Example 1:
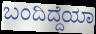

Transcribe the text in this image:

ಬಂದಿದ್ದೆಯಾ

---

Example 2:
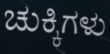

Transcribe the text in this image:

ಚುಕ್ಕಿಗಳು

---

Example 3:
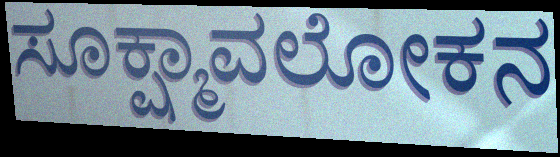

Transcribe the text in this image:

ಸೂಕ್ಷ್ಮಾವಲೋಕನ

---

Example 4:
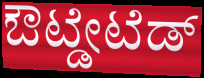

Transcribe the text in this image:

ಔಟ್ಡೇಟೆಡ್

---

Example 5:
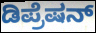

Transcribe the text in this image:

ಡಿಪ್ರೆಷನ್